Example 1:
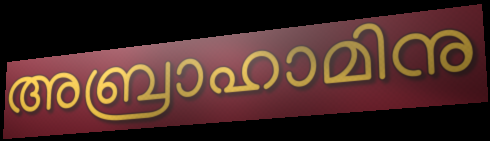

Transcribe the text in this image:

അബ്രാഹാമിനു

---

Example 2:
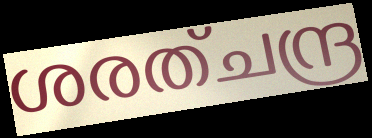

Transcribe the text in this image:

ശരത്ചന്ദ്ര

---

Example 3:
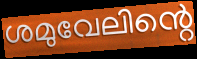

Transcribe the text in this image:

ശമുവേലിന്റെ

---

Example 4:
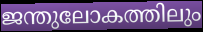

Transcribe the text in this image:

ജന്തുലോകത്തിലും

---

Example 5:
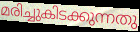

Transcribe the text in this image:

മരിച്ചുകിടക്കുന്നതു